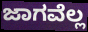
ಜಾಗವೆಲ್ಲ